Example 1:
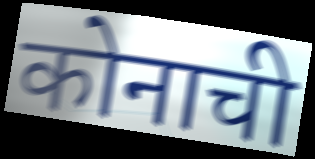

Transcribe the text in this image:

कोनाची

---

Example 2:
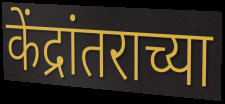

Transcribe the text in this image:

केंद्रांतराच्या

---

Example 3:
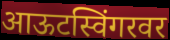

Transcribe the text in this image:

आऊटस्विंगरवर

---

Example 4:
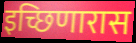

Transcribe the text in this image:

इच्छिणारास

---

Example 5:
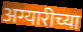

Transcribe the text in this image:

अग्यारीच्या